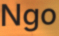
Ngo